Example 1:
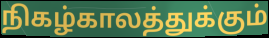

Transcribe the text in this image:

நிகழ்காலத்துக்கும்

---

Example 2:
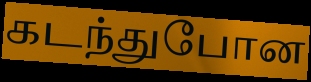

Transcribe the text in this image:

கடந்துபோன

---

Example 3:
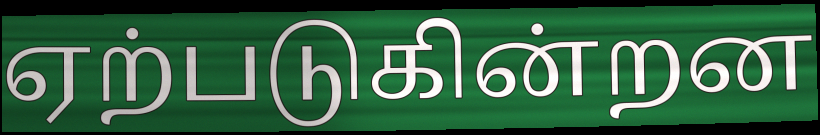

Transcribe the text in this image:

ஏற்படுகின்றன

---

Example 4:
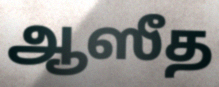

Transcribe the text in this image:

ஆஸீத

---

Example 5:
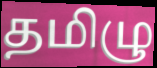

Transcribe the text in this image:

தமிழு